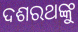
ଦଶରଥଙ୍କୁ